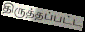
திருத்தப்பட்ட